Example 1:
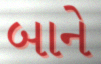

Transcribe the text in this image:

બાને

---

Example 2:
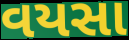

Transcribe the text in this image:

વયસા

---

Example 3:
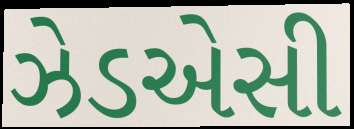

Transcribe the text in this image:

ઝેડએસી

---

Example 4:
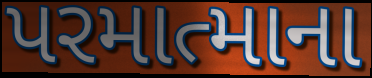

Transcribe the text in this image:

પરમાત્માના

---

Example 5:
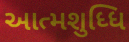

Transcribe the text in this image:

આત્મશુધ્ધિ